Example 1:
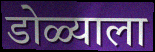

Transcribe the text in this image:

डोळ्याला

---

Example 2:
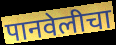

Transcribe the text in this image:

पानवेलीचा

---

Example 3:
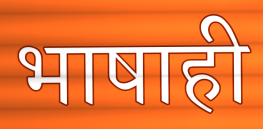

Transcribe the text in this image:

भाषाही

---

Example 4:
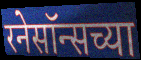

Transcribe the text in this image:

रनेसॉन्सच्या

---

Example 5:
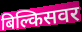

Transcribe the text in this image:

बिल्किसवर